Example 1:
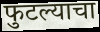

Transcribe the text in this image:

फुटल्याचा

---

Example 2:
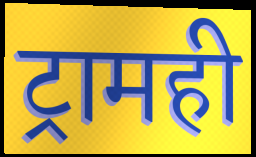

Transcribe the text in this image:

ट्रामही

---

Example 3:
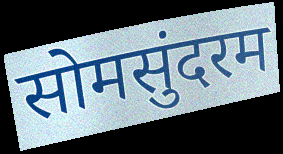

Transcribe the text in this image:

सोमसुंदरम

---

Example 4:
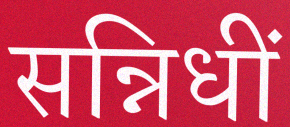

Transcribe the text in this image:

सन्निधीं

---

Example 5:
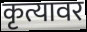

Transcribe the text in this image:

कृत्यावर